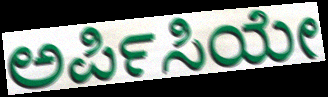
ಅರ್ಪಿಸಿಯೇ